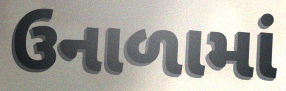
ઉનાળામાં